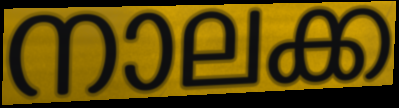
നാലക്ക